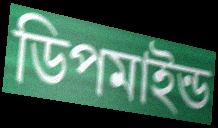
ডিপমাইন্ড